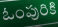
ఓంపురికి